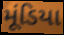
મૂંડિયા